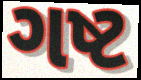
ગષ્ટ